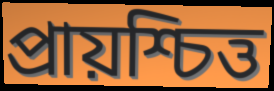
প্ৰায়শ্চিত্ত